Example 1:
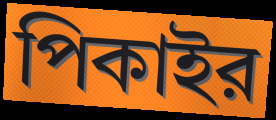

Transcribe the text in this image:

পিকাইর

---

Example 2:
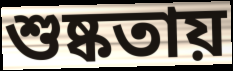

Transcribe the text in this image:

শুষ্কতায়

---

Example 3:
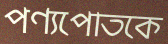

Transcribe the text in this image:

পণ্যপোতকে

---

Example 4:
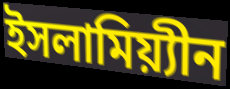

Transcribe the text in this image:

ইসলামিয়্যীন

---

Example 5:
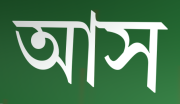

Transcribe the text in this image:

আস